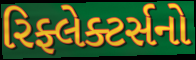
રિફ્લેક્ટર્સનો